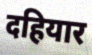
दहियार